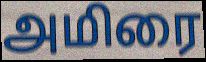
அமிரை